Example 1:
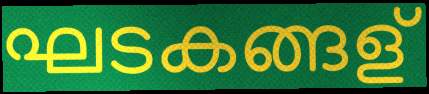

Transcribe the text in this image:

ഘടകങ്ങള്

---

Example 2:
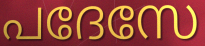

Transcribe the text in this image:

പദേസേ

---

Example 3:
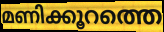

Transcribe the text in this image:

മണിക്കൂറത്തെ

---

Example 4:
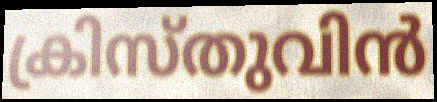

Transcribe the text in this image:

ക്രിസ്തുവിൻ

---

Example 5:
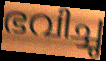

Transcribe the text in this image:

ഭവിച്ചു